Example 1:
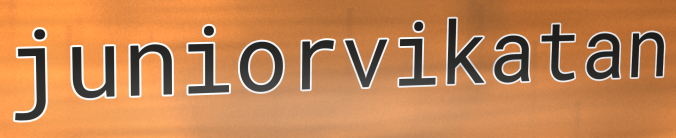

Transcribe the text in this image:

juniorvikatan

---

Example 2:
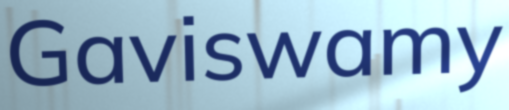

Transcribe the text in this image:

Gaviswamy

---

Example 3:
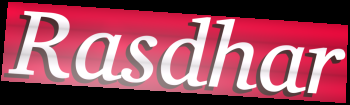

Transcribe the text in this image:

Rasdhar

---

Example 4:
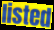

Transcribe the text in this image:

listed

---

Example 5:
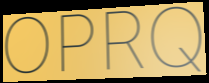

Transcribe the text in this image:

OPRQ